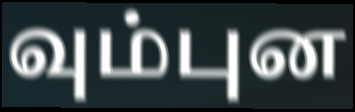
வும்புன